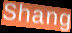
Shang